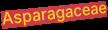
Asparagaceae